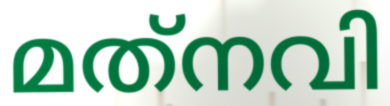
മത്‌നവി